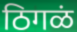
ठिगळं